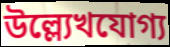
উল্ল্যেখযোগ্য